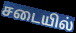
சடையில்